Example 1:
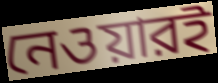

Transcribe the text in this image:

নেওয়ারই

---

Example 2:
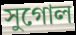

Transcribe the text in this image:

সুগোল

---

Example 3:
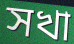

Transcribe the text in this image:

সখা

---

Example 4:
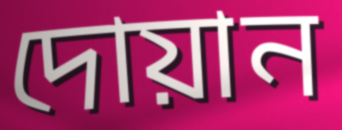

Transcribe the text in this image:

দোয়ান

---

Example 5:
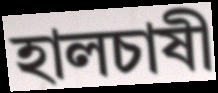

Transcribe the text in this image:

হালচাষী